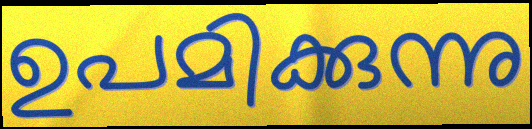
ഉപമിക്കുന്നു